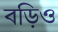
বড়িও